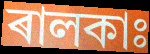
ৰালকাঃ